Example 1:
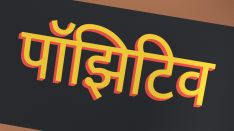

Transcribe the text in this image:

पॉझिटिव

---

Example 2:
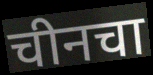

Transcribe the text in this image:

चीनचा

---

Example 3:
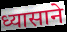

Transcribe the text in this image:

ध्यासाने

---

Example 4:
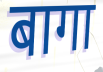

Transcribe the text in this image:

बागा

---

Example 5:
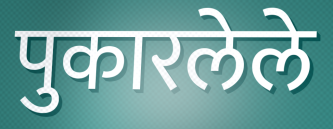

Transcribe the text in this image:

पुकारलेले